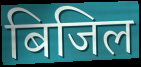
बिजिल